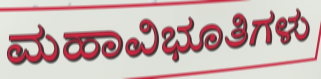
ಮಹಾವಿಭೂತಿಗಳು